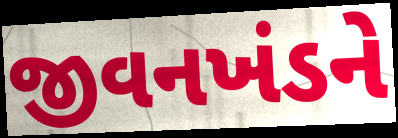
જીવનખંડને